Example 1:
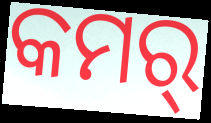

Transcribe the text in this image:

କମର୍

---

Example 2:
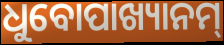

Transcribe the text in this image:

ଧୁବୋପାଖ୍ୟାନମ୍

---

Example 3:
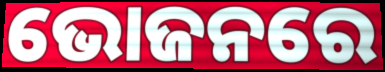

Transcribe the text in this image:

ଭୋଜନରେ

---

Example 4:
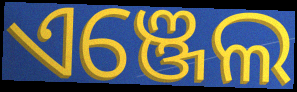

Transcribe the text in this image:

ଏଞ୍ଜେଲ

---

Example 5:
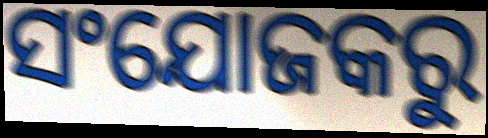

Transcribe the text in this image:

ସଂଯୋଜକରୁ